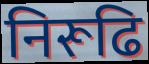
निरूढि